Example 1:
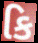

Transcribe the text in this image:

કિ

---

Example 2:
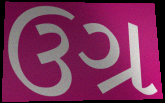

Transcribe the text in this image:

ઉગ્ર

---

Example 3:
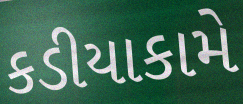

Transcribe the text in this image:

કડીયાકામે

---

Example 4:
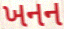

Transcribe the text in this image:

ખનન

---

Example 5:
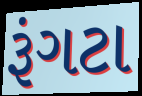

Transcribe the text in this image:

રૂંગટા